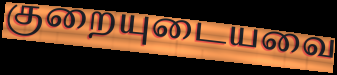
குறையுடையவை